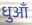
धुआँ